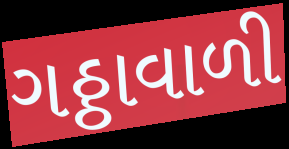
ગઠ્ઠાવાળી